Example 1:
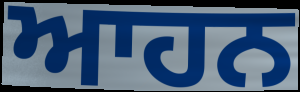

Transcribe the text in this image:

ਆਹਨ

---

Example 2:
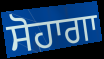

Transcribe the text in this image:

ਸੋਹਾਗਾ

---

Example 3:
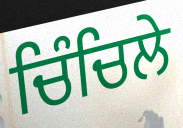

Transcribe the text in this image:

ਚਿੰਚਿਲੇ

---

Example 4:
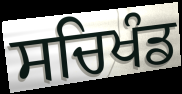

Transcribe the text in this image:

ਸਚਿਖੰਡ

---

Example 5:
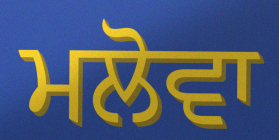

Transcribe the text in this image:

ਮਲੋਵਾ